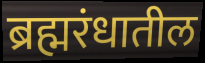
ब्रह्मरंधातील